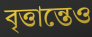
বৃত্তান্তেও